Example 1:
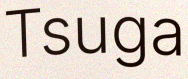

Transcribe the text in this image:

Tsuga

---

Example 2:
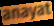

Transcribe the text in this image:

anayat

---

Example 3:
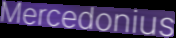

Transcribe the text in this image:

Mercedonius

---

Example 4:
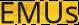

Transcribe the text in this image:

EMUs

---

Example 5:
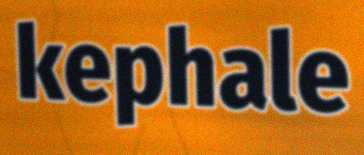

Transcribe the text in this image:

kephale